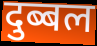
दुब्बल